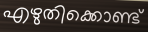
എഴുതിക്കൊണ്ട്